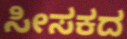
ಸೀಸಕದ